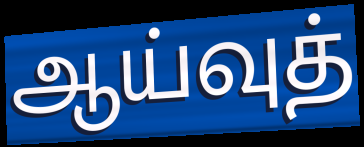
ஆய்வுத்